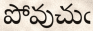
పోవుచుఁ